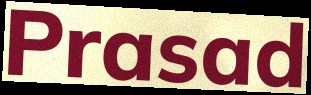
Prasad